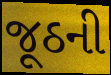
જૂઠની